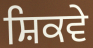
ਸ਼ਿਕਵੇ